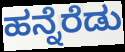
ಹನ್ನೆರೆಡು